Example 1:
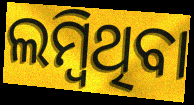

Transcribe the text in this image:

ଲମ୍ବିଥିବା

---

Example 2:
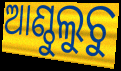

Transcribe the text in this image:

ଆଣ୍ଠୁଲୁଚୁ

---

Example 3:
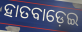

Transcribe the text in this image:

ହାତବାଡ଼େଇ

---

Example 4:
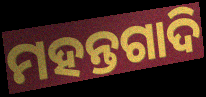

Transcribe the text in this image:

ମହନ୍ତଗାଦି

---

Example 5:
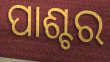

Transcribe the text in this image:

ପାଶ୍ଚର